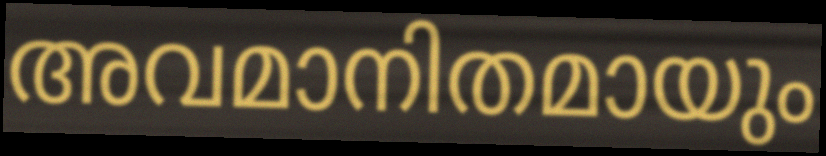
അവമാനിതമായും